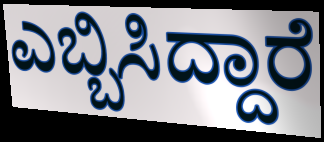
ಎಬ್ಬಿಸಿದ್ದಾರೆ